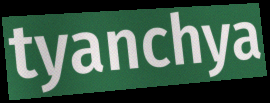
tyanchya